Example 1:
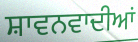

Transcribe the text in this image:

ਸ਼ਾਵਨਵਾਦੀਆਂ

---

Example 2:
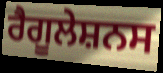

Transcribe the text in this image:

ਰੈਗੂਲੇਸ਼ਨਸ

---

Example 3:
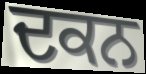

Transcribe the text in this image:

ਦਕਨ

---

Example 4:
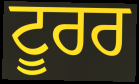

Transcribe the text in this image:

ਟੂਰਰ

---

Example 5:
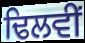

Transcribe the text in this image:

ਢਿਲਵੀਂ